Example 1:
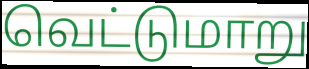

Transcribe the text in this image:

வெட்டுமாறு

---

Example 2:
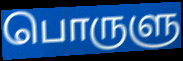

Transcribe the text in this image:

பொருளு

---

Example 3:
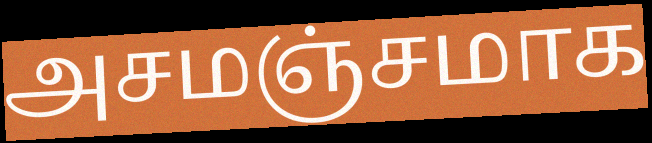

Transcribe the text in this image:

அசமஞ்சமாக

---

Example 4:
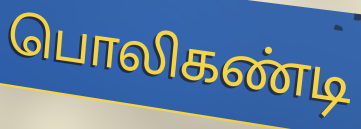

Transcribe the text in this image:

பொலிகண்டி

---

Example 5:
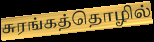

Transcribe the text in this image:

சுரங்கத்தொழில்